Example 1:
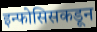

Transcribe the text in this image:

इन्फोसिसकडून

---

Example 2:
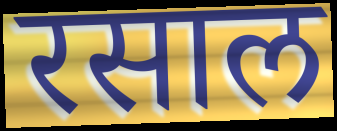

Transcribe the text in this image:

रसाल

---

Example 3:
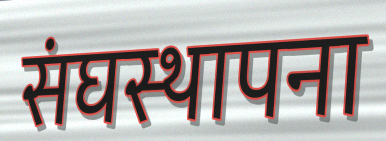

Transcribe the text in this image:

संघस्थापना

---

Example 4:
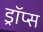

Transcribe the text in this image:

ड्रॉप्स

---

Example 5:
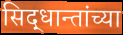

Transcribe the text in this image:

सिद्धान्तांच्या